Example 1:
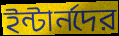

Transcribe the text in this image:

ইন্টার্নদের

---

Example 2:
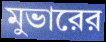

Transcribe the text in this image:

মুভারের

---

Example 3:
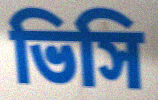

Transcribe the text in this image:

ভিসি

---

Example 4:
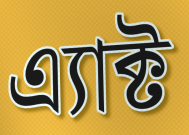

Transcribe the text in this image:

এ্যাক্ট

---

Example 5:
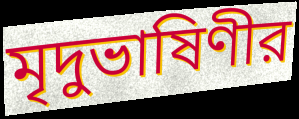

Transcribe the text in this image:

মৃদুভাষিণীর